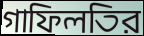
গাফিলতির